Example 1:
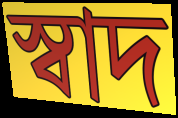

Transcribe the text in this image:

স্বাদ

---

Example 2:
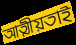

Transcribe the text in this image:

আত্মীয়তাই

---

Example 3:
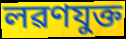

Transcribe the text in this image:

লৱণযুক্ত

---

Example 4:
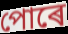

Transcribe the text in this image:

পোৰে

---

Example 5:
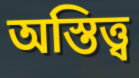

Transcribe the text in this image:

অস্তিত্ত্ব